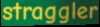
straggler